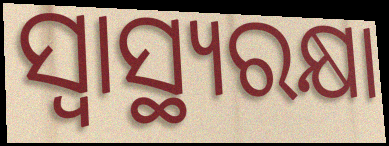
ସ୍ବାସ୍ଥ୍ୟରକ୍ଷା